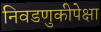
निवडणुकीपेक्षा